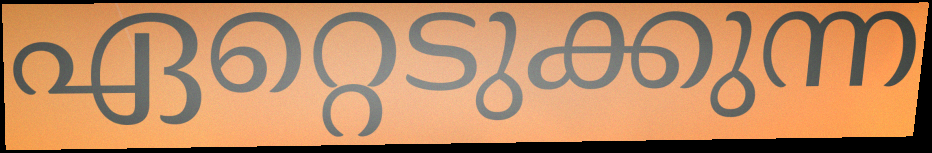
ഏറ്റെടുക്കുന്ന